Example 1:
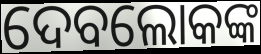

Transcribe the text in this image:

ଦେବଲୋକଙ୍କ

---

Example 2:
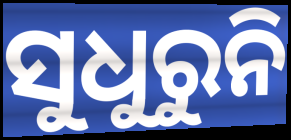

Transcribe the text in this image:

ସୁଧୁରୁନି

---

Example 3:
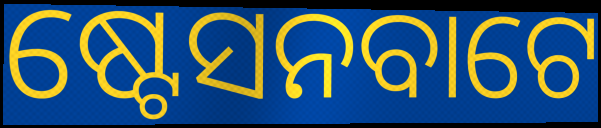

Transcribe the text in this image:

ଷ୍ଟେସନବାଟେ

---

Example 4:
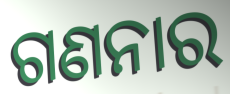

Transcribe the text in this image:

ଗଣନାର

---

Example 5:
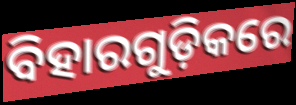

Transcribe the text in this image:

ବିହାରଗୁଡ଼ିକରେ